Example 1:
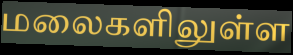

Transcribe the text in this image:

மலைகளிலுள்ள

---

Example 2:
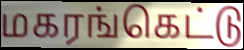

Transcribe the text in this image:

மகரங்கெட்டு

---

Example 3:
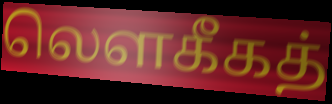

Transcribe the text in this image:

லௌகீகத்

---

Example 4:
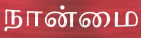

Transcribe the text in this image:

நான்மை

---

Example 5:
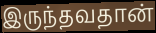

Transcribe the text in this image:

இருந்தவதான்